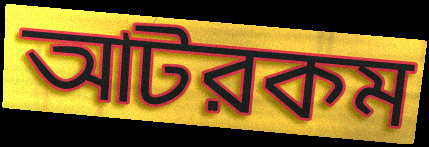
আটরকম